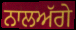
ਨਾਲਅੱਗੇ